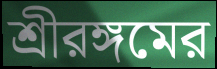
শ্রীরঙ্গমের